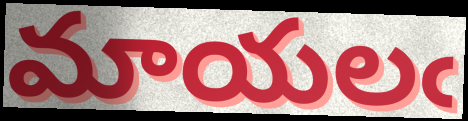
మాయలఁ